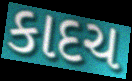
કાદચ